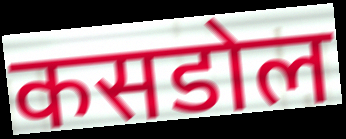
कसडोल